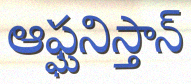
ఆఫ్ఘనిస్తాన్